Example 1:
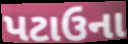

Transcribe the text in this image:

પટાઉના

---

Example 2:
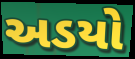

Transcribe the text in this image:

અડયો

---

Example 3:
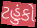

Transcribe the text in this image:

ટહુંકો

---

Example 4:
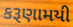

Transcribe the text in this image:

કરૂણામયી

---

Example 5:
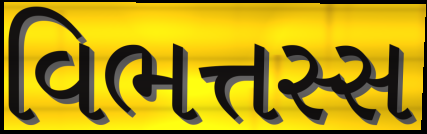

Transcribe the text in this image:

વિભત્તસ્સ